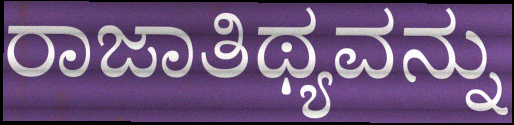
ರಾಜಾತಿಥ್ಯವನ್ನು